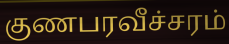
குணபரவீச்சரம்